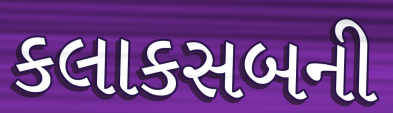
કલાકસબની